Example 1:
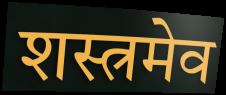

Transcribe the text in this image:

शस्त्रमेव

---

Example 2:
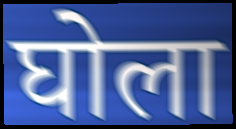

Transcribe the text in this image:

घोला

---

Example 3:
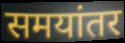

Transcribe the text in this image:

समयांतर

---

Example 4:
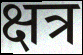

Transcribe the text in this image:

क्षत्र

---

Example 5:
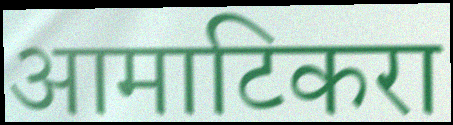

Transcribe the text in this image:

आमाटिकरा